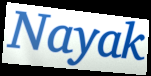
Nayak